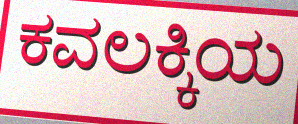
ಕವಲಕ್ಕಿಯ